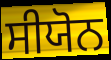
ਸੀਯੋਨ